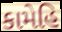
કામેહિ